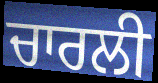
ਚਾਰਲੀ